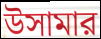
উসামার